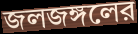
জলজঙ্গলের